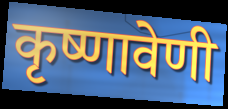
कृष्णावेणी